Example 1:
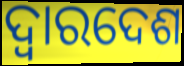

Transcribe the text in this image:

ଦ୍ଵାରଦେଶ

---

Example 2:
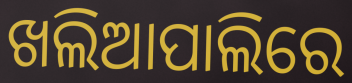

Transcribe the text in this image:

ଖଲିଆପାଲିରେ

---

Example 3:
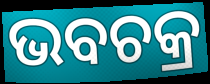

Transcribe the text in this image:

ଭବଚକ୍ର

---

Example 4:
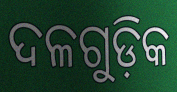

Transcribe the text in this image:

ଦଳଗୁଡ଼ିକ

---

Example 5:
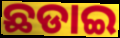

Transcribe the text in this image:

ଛଡାଇ